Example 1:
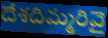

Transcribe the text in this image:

దేశదిమ్మరివై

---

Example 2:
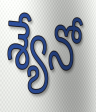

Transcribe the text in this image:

శ్యేనో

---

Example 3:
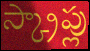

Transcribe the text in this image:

స్క్రాప్లు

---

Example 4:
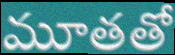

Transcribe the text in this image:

మూతతో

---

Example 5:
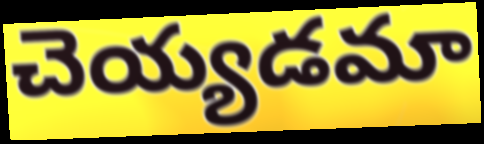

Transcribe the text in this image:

చెయ్యడమా